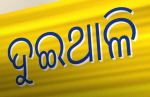
ଦୁଇଥାଳି